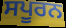
ਸਪੂਰਨ